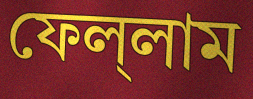
ফেল্‌লাম